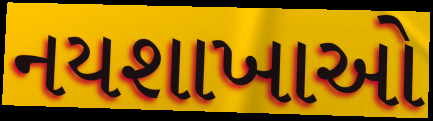
નયશાખાઓ